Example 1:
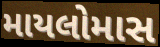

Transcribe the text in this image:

માયલોમાસ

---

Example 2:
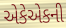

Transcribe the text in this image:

એકેએકની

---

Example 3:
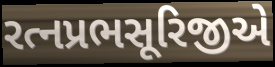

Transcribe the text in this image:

રત્નપ્રભસૂરિજીએ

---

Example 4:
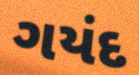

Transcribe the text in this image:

ગયંદ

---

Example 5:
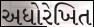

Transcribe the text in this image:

અધોરેખિત